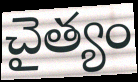
చైత్యం